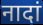
नादां